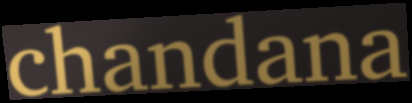
chandana